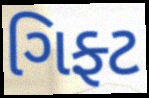
ગિફ્ટ